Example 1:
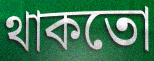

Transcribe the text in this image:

থাকতো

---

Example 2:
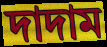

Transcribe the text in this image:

দাদাম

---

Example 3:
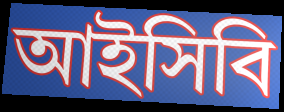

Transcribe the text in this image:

আইসিবি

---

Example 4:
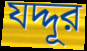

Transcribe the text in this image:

যদ্দূর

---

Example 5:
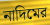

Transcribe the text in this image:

নাদিমের